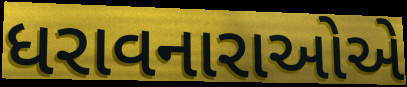
ધરાવનારાઓએ